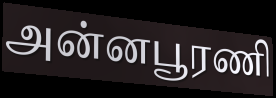
அன்னபூரணி